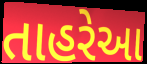
તાહરેઆ